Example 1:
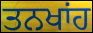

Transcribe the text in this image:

ਤਨਖਾਂਹ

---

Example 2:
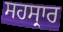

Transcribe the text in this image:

ਸਹਸ੍ਰਾਰ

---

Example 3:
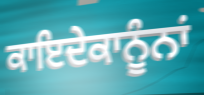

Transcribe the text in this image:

ਕਾਇਦੇਕਾਨੂੰਨਾਂ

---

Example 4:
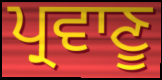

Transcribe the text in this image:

ਪ੍ਰਵਾਣੂ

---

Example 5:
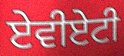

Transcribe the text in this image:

ਏਵੀਏਟੀ